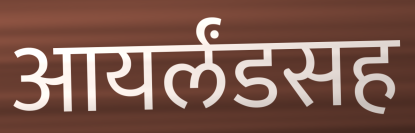
आयर्लंडसह